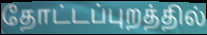
தோட்டப்புறத்தில்